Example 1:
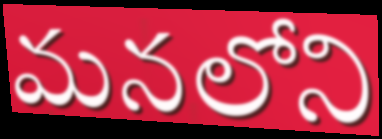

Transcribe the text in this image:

మనలోని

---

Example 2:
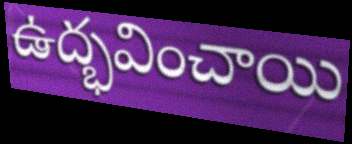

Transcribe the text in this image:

ఉద్భవించాయి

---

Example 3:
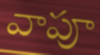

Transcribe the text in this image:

వాపూ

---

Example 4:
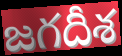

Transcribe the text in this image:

జగదీశ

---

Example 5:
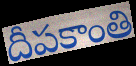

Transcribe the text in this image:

దీపకాంతి